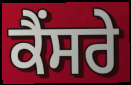
ਕੈਂਸਰੇ